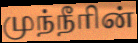
முந்நீரின்